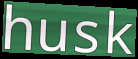
husk